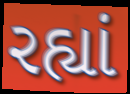
રહ્યાં